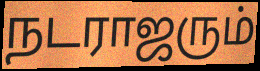
நடராஜரும்